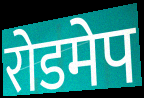
रोडमेप